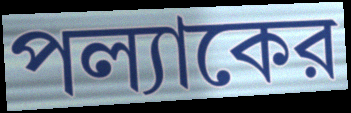
পল্যাকের